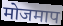
मोजमाप